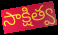
సాక్షిత్వ